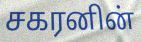
சகரனின்